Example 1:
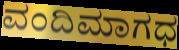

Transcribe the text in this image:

ವಂದಿಮಾಗಧ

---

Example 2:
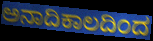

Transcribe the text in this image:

ಅನಾದಿಕಾಲದಿಂದ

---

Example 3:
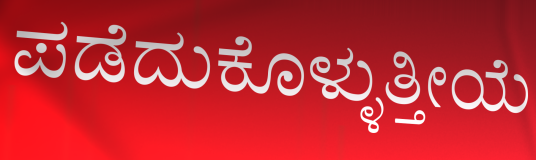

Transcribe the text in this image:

ಪಡೆದುಕೊಳ್ಳುತ್ತೀಯೆ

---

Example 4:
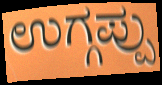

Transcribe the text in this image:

ಉಗ್ಗಪ್ಪು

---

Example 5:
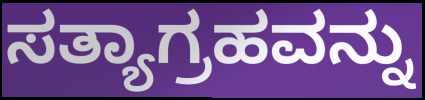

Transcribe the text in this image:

ಸತ್ಯಾಗ್ರಹವನ್ನು